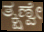
ತ್ಕ್ಷಣ್ವೇ